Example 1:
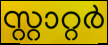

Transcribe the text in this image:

സ്റ്റാറ്റർ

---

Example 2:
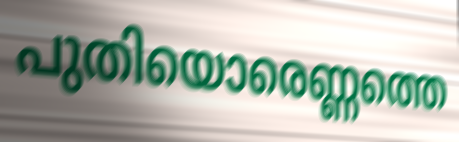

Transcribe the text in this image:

പുതിയൊരെണ്ണത്തെ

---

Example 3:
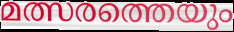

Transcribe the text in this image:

മത്സരത്തെയും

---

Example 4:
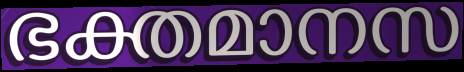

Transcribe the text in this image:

ഭക്തമാനസ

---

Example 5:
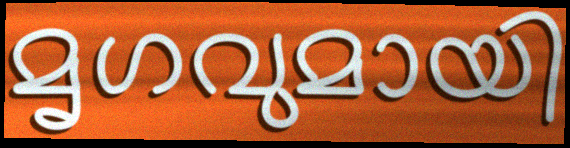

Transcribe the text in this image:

മൃഗവുമായി